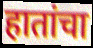
हातांचा